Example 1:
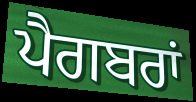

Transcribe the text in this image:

ਪੈਗਬਰਾਂ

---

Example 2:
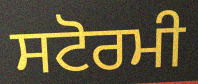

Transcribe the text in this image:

ਸਟੋਰਮੀ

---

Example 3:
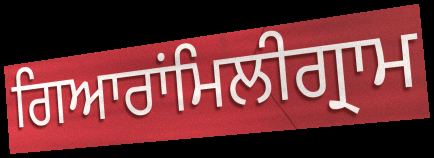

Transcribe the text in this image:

ਗਿਆਰਾਂਮਿਲੀਗ੍ਰਾਮ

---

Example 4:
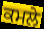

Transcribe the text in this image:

ਕਮਲੇ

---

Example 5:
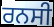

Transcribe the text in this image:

ਰਨਸੀ